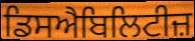
ਡਿਸਐਬਿਲਿਟੀਜ਼